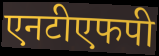
एनटीएफपी